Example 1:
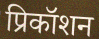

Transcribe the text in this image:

प्रिकॉशन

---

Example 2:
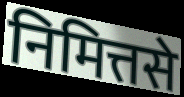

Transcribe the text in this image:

निमित्तसे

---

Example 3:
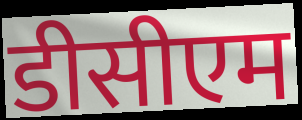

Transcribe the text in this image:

डीसीएम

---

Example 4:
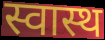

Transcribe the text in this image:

स्वास्थ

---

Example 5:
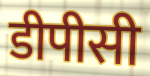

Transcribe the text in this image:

डीपीसी